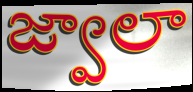
జ్వాలా